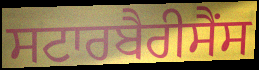
ਸਟਾਰਬੈਰੀਸੈਂਸ